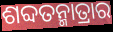
ଶବ୍ଦତନ୍ମାତ୍ରାର